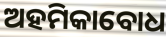
ଅହମିକାବୋଧ